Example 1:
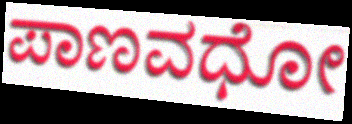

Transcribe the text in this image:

ಪಾಣವಧೋ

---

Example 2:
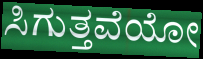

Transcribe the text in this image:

ಸಿಗುತ್ತವೆಯೋ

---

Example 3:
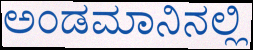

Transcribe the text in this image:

ಅಂಡಮಾನಿನಲ್ಲಿ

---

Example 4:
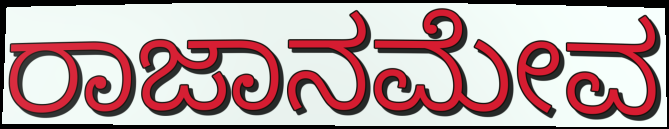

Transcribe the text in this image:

ರಾಜಾನಮೇವ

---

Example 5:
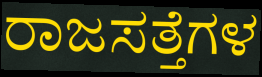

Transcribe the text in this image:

ರಾಜಸತ್ತೆಗಳ